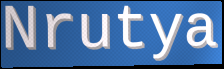
Nrutya